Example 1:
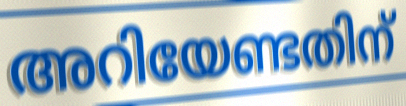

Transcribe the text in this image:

അറിയേണ്ടതിന്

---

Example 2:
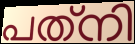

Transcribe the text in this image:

പത്‌നി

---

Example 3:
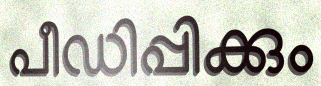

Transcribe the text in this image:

പീഡിപ്പിക്കും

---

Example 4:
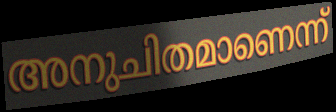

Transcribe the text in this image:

അനുചിതമാണെന്ന്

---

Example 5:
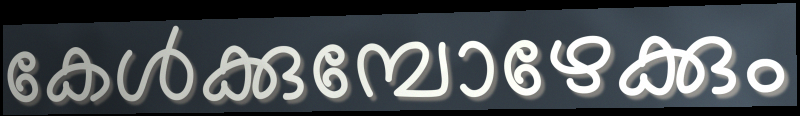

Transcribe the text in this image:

കേൾക്കുമ്പോഴേക്കും